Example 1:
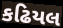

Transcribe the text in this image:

કઢિયલ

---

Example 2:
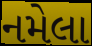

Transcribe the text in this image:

નમેલા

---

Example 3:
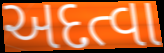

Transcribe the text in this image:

અદત્વા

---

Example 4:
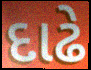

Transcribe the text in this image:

દાઢે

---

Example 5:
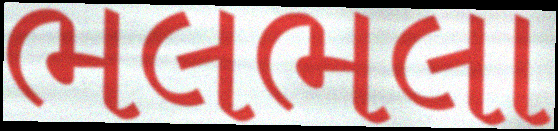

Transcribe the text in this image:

ભલભલા